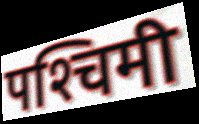
पश्चिमी